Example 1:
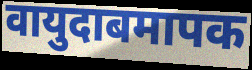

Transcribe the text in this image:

वायुदाबमापक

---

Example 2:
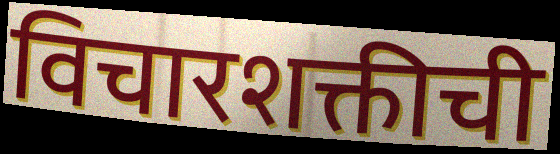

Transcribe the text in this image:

विचारशक्तीची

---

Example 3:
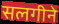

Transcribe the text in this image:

सलगीने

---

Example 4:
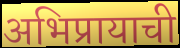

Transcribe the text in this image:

अभिप्रायाची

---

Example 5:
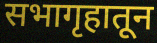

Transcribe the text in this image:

सभागृहातून